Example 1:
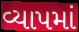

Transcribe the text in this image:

વ્યાપમાં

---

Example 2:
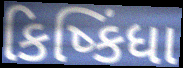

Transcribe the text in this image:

કિષ્કિંધા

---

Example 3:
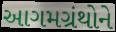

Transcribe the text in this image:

આગમગ્રંથોને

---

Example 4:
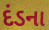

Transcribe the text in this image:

દંડના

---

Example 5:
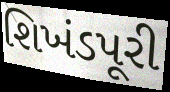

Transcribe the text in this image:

શિખંડપૂરી